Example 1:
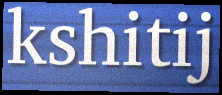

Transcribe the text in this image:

kshitij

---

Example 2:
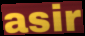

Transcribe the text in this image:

asir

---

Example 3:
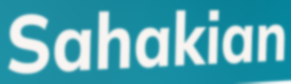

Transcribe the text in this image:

Sahakian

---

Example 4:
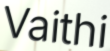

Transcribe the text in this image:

Vaithi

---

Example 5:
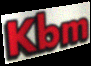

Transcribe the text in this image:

Kbm